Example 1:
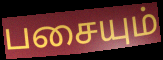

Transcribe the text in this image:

பசையும்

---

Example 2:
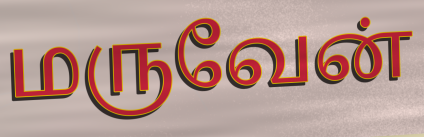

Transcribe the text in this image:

மருவேன்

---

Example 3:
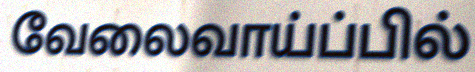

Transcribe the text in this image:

வேலைவாய்ப்பில்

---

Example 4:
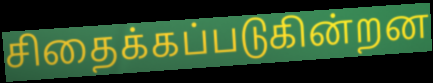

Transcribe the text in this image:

சிதைக்கப்படுகின்றன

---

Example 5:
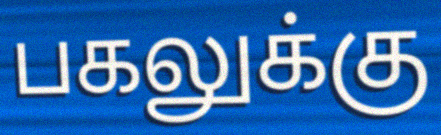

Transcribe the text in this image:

பகலுக்கு